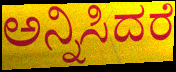
ಅನ್ನಿಸಿದರೆ